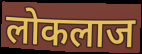
लोकलाज